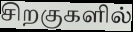
சிறகுகளில்